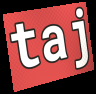
taj